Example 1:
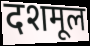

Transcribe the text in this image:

दशमूल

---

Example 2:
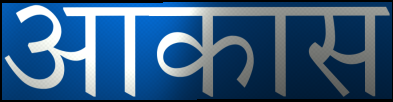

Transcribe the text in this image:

आकास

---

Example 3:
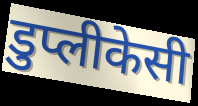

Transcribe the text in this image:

डुप्लीकेसी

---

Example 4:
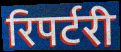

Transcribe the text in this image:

रिपर्टरी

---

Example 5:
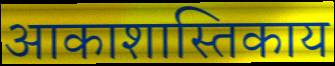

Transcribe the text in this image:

आकाशास्तिकाय